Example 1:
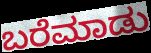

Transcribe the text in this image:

ಬರೆಮಾಡು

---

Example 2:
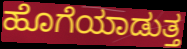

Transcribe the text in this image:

ಹೊಗೆಯಾಡುತ್ತ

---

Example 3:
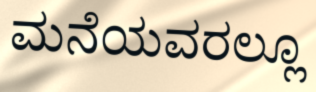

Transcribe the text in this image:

ಮನೆಯವರಲ್ಲೂ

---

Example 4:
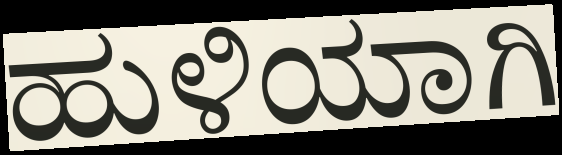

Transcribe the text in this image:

ಹುಳಿಯಾಗಿ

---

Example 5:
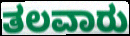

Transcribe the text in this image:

ತಲವಾರು